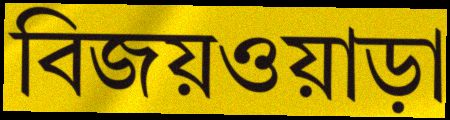
বিজয়ওয়াড়া